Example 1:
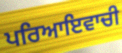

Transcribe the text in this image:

ਪਰਿਆਇਵਾਚੀ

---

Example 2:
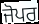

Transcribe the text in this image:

ਜੋਪਰ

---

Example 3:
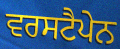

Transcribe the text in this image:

ਵਰਸਟੈਪੇਨ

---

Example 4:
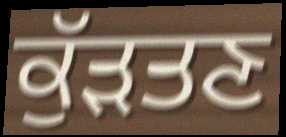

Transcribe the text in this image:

ਕੁੱੜਤਣ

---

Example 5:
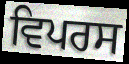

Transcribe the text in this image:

ਵਿਪਰਸ